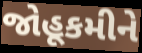
જોહૂકમીને